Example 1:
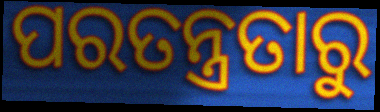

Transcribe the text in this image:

ପରତନ୍ତ୍ରତାରୁ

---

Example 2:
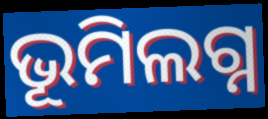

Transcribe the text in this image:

ଭୂମିଲଗ୍ନ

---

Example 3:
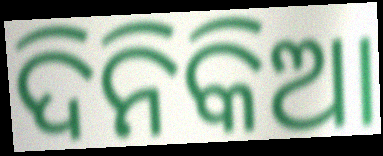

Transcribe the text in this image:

ଦିନିକିଆ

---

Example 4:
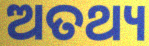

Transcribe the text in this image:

ଅତଥ୍ୟ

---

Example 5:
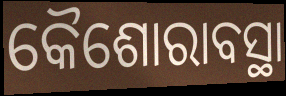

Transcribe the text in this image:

କୈଶୋରାବସ୍ଥା